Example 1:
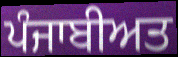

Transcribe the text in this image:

ਪੰਜਾਬੀਅਤ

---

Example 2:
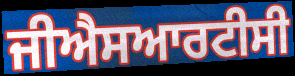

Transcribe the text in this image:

ਜੀਐਸਆਰਟੀਸੀ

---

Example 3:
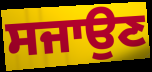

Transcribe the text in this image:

ਸਜਾਉਣ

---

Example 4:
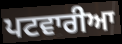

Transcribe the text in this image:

ਪਟਵਾਰੀਆ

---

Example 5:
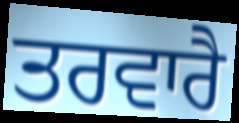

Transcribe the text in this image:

ਤਰਵਾਰੈ